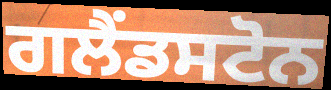
ਗਲੈਂਡਸਟੋਨ